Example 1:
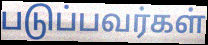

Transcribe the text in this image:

படுப்பவர்கள்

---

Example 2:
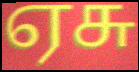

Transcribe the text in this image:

ஏசு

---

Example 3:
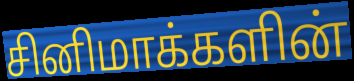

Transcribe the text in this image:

சினிமாக்களின்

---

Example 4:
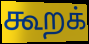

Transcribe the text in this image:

கூறக்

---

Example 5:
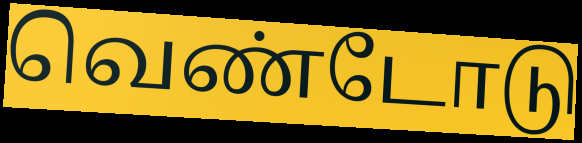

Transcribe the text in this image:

வெண்டோடு